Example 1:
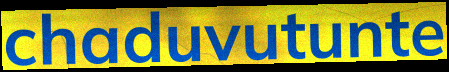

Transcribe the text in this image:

chaduvutunte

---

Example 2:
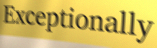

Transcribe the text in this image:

Exceptionally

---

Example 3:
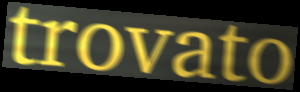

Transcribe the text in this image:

trovato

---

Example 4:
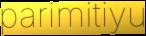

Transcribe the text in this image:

parimitiyu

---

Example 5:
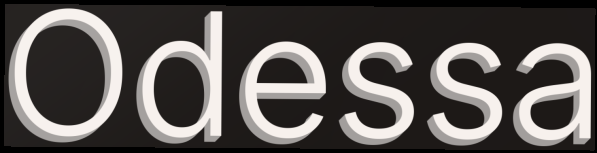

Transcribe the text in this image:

Odessa